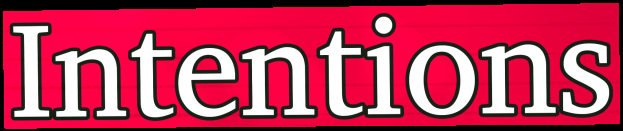
Intentions